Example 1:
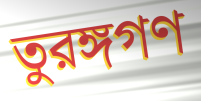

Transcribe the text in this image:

তুরঙ্গগণ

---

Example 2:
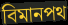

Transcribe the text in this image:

বিমানপথ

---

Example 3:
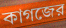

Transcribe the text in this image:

কাগজের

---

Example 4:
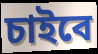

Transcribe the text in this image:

চাইবে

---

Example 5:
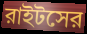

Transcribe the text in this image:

রাইটসের